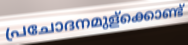
പ്രചോദനമുള്ക്കൊണ്ട്